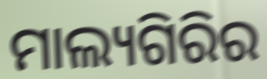
ମାଲ୍ୟଗିରିର